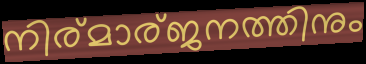
നിര്മാര്ജനത്തിനും